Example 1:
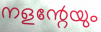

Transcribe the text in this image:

നളന്റേയും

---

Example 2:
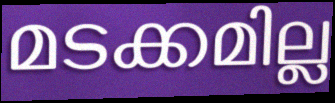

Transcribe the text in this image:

മടക്കമില്ല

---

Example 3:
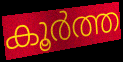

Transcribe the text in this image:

കൂർത്ത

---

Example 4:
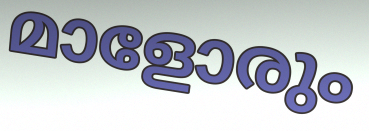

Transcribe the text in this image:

മാളോരും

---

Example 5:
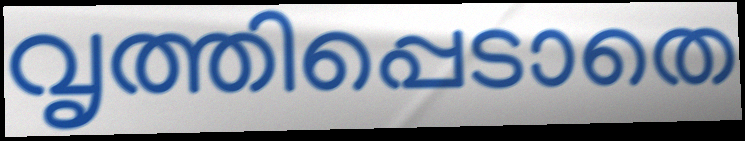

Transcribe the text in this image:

വൃത്തിപ്പെടാതെ